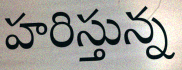
హరిస్తున్న